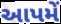
આપમેં